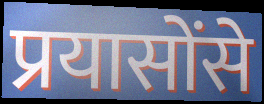
प्रयासोंसे